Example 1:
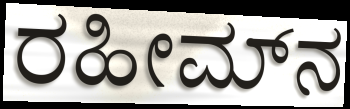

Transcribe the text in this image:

ರಹೀಮ್‌ನ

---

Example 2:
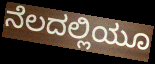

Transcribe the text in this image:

ನೆಲದಲ್ಲಿಯೂ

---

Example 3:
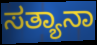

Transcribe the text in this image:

ಸತ್ಯಾನಾ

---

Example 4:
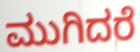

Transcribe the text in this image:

ಮುಗಿದರೆ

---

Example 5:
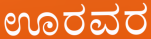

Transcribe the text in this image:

ಊರವರ